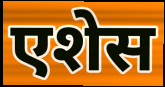
एशेस